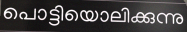
പൊട്ടിയൊലിക്കുന്നു